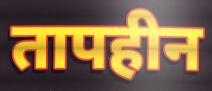
तापहीन